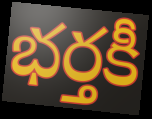
భర్తకీ